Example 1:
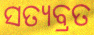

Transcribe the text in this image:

ସତ୍ୟବ୍ରତ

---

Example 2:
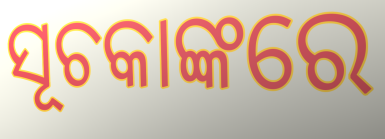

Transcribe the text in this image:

ସୂଚକାଙ୍କରେ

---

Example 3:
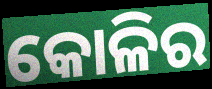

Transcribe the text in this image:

କୋଳିର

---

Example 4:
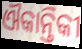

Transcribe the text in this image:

ଐକାନ୍ତିକୀ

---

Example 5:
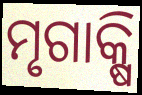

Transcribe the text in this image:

ମୃଗାକ୍ଷି